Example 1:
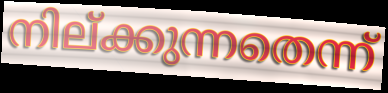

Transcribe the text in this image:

നില്ക്കുന്നതെന്ന്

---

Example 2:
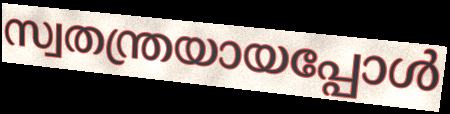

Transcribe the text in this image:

സ്വതന്ത്രയായപ്പോൾ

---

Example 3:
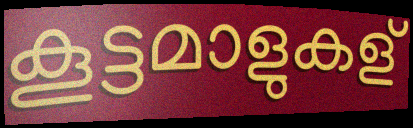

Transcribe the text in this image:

കൂട്ടമാളുകള്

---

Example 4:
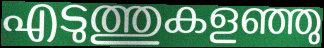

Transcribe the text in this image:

എടുത്തുകളഞ്ഞു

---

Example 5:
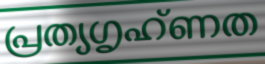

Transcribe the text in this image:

പ്രത്യഗൃഹ്ണത